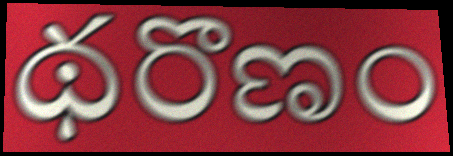
థరొణం